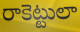
రాకెట్టులా